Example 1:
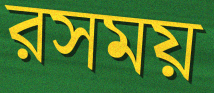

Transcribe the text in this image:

রসময়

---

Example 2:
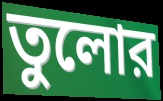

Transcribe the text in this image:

তুলোর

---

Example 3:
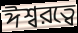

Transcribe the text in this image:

ঈশ্বরত্বে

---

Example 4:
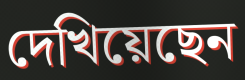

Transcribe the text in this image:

দেখিয়েছেন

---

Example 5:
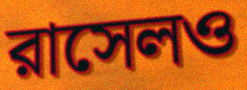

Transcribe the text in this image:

রাসেলও